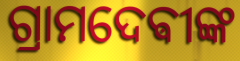
ଗ୍ରାମଦେଵୀଙ୍କ